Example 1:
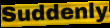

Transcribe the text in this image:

Suddenly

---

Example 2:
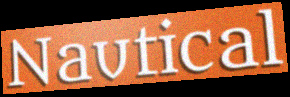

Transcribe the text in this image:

Nautical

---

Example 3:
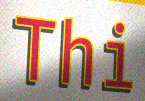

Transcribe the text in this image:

Thi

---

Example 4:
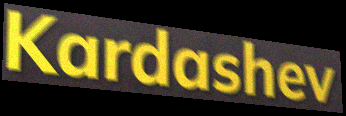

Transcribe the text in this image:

Kardashev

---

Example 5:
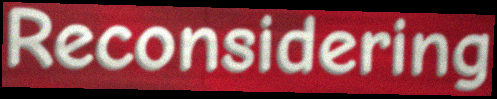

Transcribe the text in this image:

Reconsidering